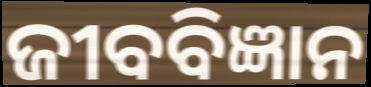
ଜୀବବିଜ୍ଞାନ